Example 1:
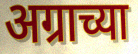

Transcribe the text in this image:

अग्राच्या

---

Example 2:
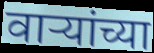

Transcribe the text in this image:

वाऱ्यांच्या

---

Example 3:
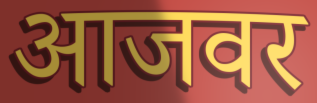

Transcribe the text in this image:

आजवर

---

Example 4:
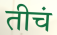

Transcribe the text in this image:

तीचं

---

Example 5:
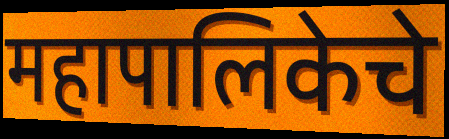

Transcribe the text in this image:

महापालिकेचे